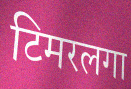
टिमरलगा